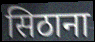
सिठाना